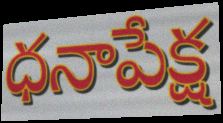
ధనాపేక్ష